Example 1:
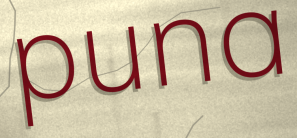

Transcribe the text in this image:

puna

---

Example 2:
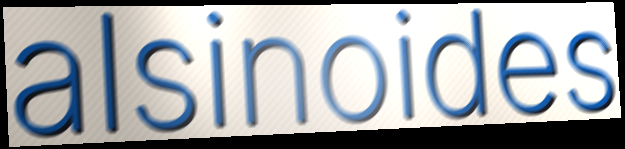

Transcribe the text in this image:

alsinoides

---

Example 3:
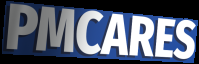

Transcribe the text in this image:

PMCARES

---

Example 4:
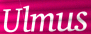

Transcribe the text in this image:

Ulmus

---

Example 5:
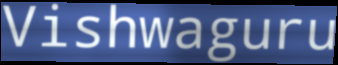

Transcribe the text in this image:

Vishwaguru